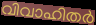
വിവാഹിതർ